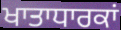
ਖਾਤਾਧਾਰਕਾਂ